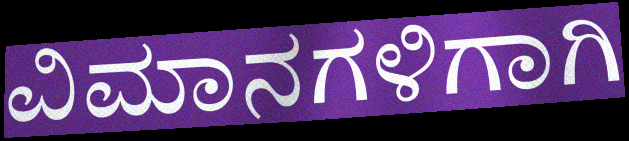
ವಿಮಾನಗಳಿಗಾಗಿ